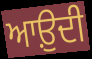
ਆਉ਼ਦੀ